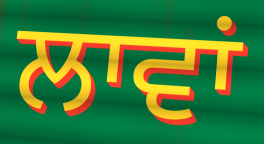
ਲਾਵਾਂ